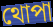
থোপা